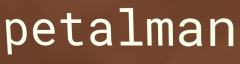
petalman